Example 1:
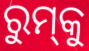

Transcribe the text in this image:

ରୁମ୍‍କୁ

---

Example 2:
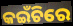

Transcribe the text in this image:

କଇଁଚିରେ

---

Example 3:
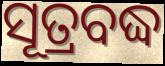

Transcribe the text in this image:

ସୂତ୍ରବଦ୍ଧ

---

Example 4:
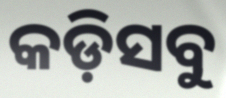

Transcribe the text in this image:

କଡ଼ିସବୁ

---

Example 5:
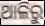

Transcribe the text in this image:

ଥାଳିରୁ